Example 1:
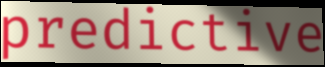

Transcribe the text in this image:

predictive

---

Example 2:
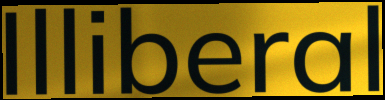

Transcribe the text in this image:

Illiberal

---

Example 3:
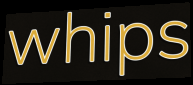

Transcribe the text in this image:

whips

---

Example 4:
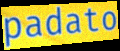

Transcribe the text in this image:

padato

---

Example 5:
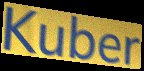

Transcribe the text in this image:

Kuber